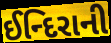
ઈન્દિરાની